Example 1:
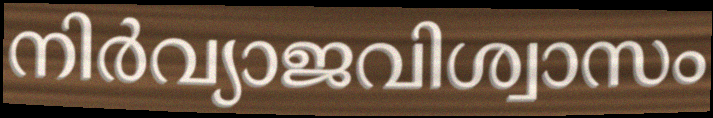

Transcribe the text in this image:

നിർവ്യാജവിശ്വാസം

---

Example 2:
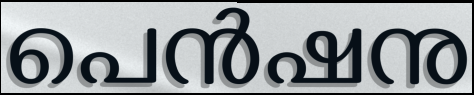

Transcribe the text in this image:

പെൻഷനു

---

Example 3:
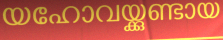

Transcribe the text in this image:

യഹോവയ്ക്കുണ്ടായ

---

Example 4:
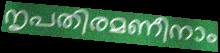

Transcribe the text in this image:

നൃപതിരമണീനാം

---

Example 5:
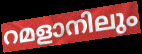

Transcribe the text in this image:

റമളാനിലും